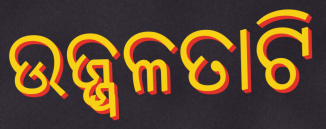
ଉଜ୍ଜ୍ୱଳତାଟି